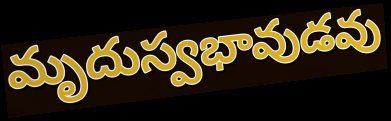
మృదుస్వభావుడవు